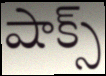
షాక్స్